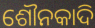
ଶୌନକାଦି